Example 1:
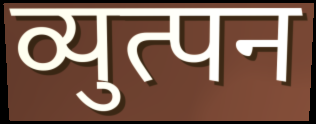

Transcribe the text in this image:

व्युत्पन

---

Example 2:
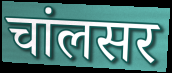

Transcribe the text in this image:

चांलसर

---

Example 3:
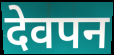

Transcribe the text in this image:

देवपन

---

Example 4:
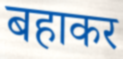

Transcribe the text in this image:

बहाकर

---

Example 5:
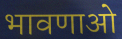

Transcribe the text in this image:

भावणाओ